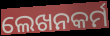
ଲେଖନକର୍ମ